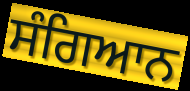
ਸੰਗਿਆਨ